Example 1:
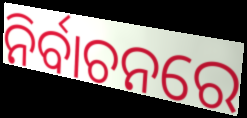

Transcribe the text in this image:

ନିର୍ବାଚନରେ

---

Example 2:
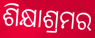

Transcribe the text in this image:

ଶିକ୍ଷାଶ୍ରମର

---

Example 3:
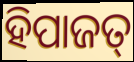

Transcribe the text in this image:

ହିପାଜତ୍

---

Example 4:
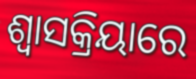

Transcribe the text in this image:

ଶ୍ୱାସକ୍ରିୟାରେ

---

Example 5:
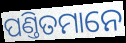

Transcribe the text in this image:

ପଣ୍ତିତମାନେ